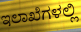
ಇಲಾಖೆಗಳಲ್ಲಿ